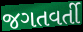
જગતવર્તી